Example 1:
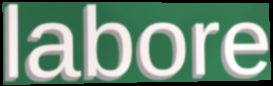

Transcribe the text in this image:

labore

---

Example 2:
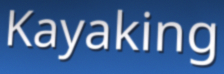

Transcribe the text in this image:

Kayaking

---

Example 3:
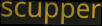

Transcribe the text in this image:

scupper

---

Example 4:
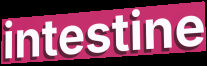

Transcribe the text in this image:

intestine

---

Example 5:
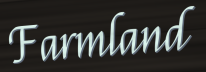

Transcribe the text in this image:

Farmland